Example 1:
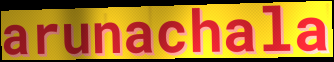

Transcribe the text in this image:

arunachala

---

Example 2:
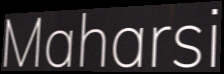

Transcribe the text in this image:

Maharsi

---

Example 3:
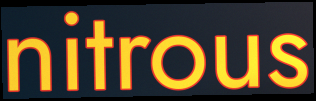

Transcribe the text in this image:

nitrous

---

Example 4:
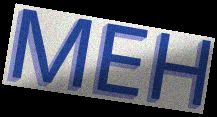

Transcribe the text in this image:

MEH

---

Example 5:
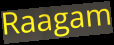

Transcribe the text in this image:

Raagam